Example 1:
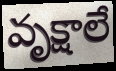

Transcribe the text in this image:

వృక్షాలే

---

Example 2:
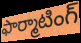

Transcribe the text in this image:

ఫార్మాటింగ్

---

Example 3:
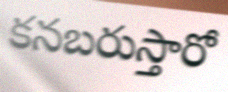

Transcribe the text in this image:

కనబరుస్తారో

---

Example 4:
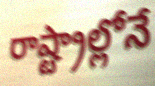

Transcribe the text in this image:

రాష్ట్రాల్లోనే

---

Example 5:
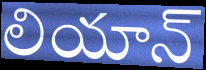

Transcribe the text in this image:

లియాన్